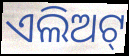
ଏଲିଅଟ୍